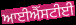
ਆਈਐੱਸਟੀਈ